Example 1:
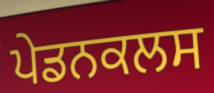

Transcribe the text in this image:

ਪੇਡਨਕਲਸ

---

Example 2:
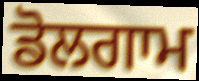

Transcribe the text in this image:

ਡੋਲਗਾਮ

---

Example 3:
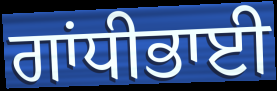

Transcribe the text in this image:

ਗਾਂਧੀਭਾਈ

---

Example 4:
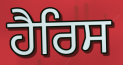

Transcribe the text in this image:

ਹੈਰਿਸ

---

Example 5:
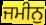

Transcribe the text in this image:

ਜਮੀਨੁ